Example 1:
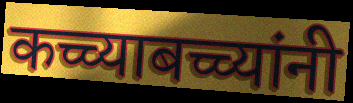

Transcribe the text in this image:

कच्च्याबच्च्यांनी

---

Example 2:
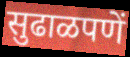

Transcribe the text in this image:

सुढाळपणें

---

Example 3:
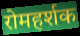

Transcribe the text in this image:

रोमहर्शक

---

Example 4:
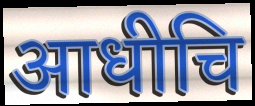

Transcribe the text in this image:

आधीचि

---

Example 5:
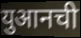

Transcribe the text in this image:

युआनची